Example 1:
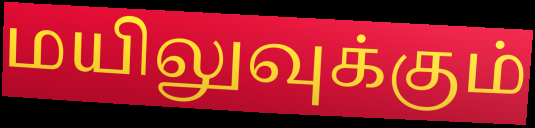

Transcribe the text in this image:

மயிலுவுக்கும்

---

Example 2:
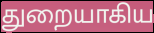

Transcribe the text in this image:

துறையாகிய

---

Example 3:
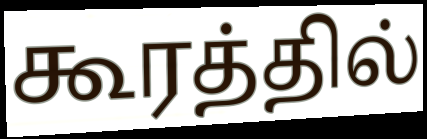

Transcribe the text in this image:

கூரத்தில்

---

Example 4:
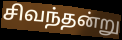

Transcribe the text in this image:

சிவந்தன்று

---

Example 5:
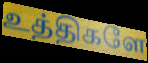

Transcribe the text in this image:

உத்திகளே